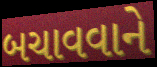
બચાવવાને